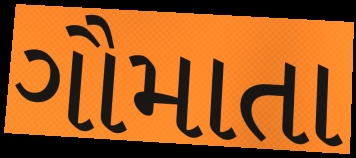
ગૌમાતા